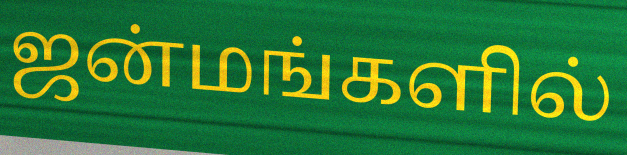
ஜன்மங்களில்